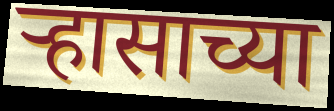
ऱ्हासाच्या